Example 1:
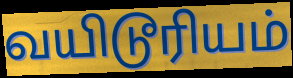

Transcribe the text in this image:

வயிடூரியம்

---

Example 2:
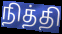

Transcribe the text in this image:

நித்தி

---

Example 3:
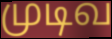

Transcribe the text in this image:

முடிவ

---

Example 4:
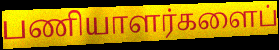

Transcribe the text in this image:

பணியாளர்களைப்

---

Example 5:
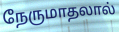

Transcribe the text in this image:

நேருமாதலால்